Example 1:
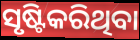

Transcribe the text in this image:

ସୃଷ୍ଟିକରିଥିବା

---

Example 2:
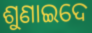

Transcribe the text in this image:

ଶୁଣାଇଦେ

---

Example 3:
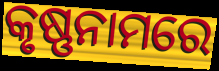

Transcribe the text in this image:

କୃଷ୍ଣନାମରେ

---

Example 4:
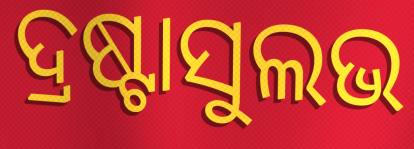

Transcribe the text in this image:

ଦ୍ରଷ୍ଟାସୁଲଭ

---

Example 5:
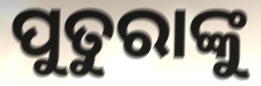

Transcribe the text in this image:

ପୁତୁରାଙ୍କୁ